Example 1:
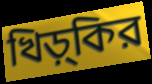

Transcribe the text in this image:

খিড়্‌কির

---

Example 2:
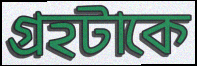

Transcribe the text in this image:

গ্রহটাকে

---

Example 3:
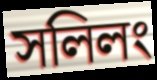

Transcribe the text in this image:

সলিলং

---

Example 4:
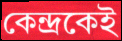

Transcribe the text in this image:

কেন্দ্রকেই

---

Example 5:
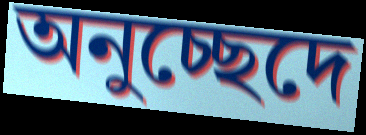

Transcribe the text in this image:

অনুচ্ছেদে